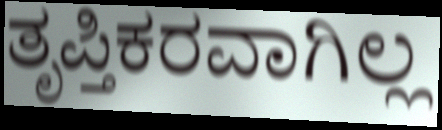
ತೃಪ್ತಿಕರವಾಗಿಲ್ಲ